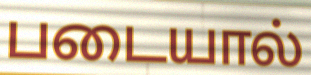
படையால்